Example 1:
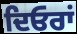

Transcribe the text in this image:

ਦਿਓਰਾਂ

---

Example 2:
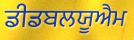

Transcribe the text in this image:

ਡੀਡਬਲਯੂਐਮ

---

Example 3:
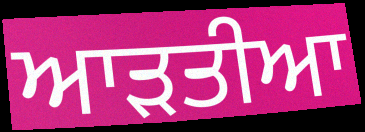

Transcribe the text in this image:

ਆੜਤੀਆ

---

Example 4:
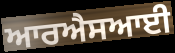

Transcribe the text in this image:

ਆਰਐਸਆਈ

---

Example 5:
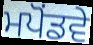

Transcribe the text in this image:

ਮਪੋਂਡਵੇ